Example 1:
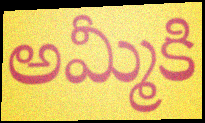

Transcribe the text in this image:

అమ్మీకి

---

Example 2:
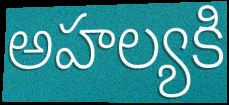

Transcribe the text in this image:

అహల్యకి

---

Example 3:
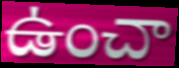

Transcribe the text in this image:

ఉంచా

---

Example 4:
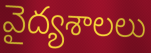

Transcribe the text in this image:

వైద్యశాలలు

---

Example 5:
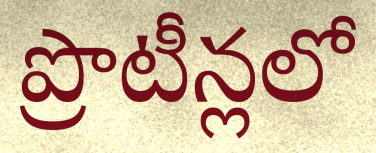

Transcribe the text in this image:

ప్రొటీన్లలో